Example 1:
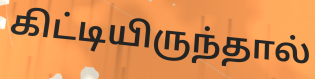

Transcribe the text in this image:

கிட்டியிருந்தால்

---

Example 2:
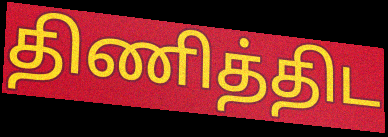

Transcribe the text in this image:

திணித்திட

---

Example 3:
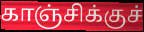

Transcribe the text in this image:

காஞ்சிக்குச்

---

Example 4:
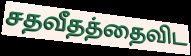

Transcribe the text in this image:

சதவீதத்தைவிட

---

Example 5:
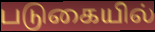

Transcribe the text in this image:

படுகையில்